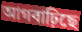
আগবাঢ়িছে